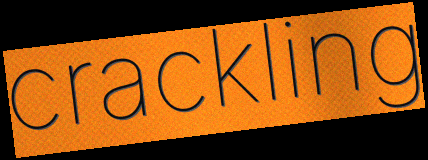
crackling